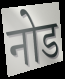
नोड